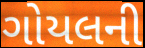
ગોયલની